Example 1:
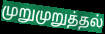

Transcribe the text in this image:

முறுமுறுத்தல்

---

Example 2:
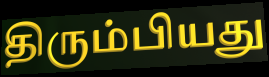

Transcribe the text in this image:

திரும்பியது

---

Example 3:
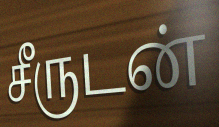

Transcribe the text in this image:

சீருடன்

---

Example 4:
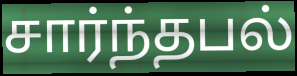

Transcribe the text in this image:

சார்ந்தபல்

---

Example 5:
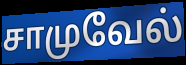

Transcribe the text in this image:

சாமுவேல்